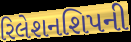
રિલેશનશિપની